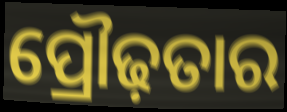
ପ୍ରୌଢ଼ତାର